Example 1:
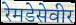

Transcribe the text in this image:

रेमडेसेवीर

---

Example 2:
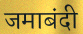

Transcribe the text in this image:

जमाबंदी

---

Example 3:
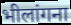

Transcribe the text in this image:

भीलांगना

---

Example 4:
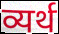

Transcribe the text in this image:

व्यर्थ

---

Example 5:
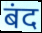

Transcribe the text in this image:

बंद